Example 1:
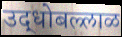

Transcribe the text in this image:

उद्धोबल्लाळ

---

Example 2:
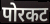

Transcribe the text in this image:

पोरकट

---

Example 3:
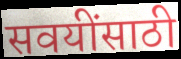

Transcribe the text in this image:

सवयींसाठी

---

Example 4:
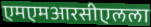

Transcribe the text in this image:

एमएमआरसीएलला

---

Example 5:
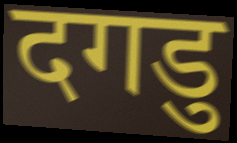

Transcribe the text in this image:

दगडु